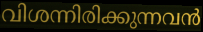
വിശന്നിരിക്കുന്നവൻ